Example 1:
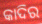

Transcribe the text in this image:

କାଦିର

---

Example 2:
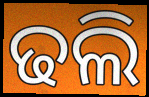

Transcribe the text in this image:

ଢଲି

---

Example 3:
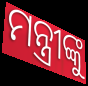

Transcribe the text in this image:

ମନ୍ତ୍ରୀଙ୍କୁ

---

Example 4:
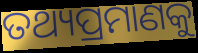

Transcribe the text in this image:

ତଥ୍ୟପ୍ରମାଣକୁ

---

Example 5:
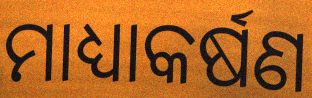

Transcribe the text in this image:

ମାଧ୍ୟାକର୍ଷଣ